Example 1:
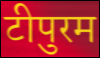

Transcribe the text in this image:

टीपुरम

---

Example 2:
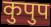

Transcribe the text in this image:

कुपुप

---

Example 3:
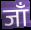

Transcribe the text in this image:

जाँ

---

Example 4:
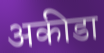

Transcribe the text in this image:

अकीडा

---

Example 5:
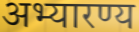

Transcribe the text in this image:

अभ्यारण्य